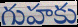
గుహకు